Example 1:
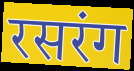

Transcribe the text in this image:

रसरंग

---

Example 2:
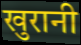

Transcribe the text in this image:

खुरानी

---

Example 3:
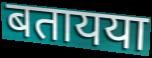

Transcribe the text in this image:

बतायया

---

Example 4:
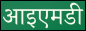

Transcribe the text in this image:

आइएमडी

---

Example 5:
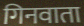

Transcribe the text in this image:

गिनवाता